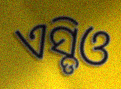
ଏସ୍ଡିଓ